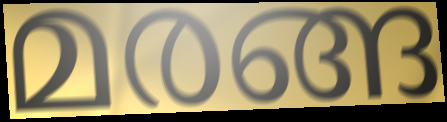
മരങ്ങ